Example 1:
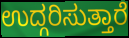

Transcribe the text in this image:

ಉದ್ಗರಿಸುತ್ತಾರೆ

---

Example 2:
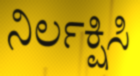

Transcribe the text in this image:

ನಿರ್ಲಕ್ಷಿಸಿ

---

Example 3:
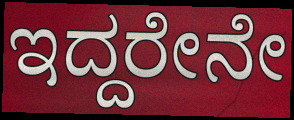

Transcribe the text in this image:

ಇದ್ದರೇನೇ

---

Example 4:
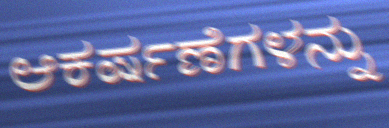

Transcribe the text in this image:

ಆಕರ್ಷಣೆಗಳನ್ನು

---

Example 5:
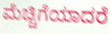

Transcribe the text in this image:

ಮೆಚ್ಚಿಗೆಯಾದರೆ